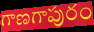
గాణగాపురం